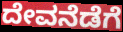
ದೇವನೆಡೆಗೆ